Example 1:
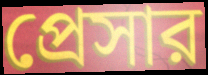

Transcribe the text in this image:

প্রেসার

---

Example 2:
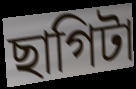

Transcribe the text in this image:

ছাগিটা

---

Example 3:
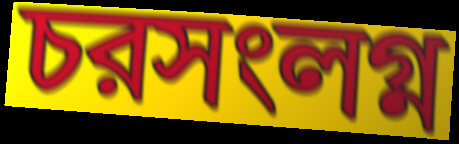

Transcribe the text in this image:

চরসংলগ্ন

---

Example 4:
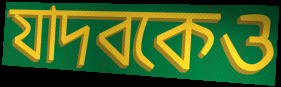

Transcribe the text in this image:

যাদবকেও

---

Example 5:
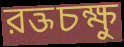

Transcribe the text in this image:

রক্তচক্ষু